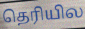
தெரியில